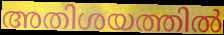
അതിശയത്തിൽ